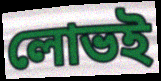
লোভই